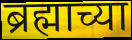
ब्रह्माच्या